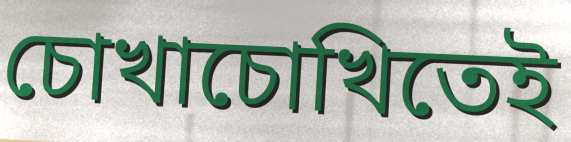
চোখাচোখিতেই